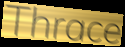
Thrace